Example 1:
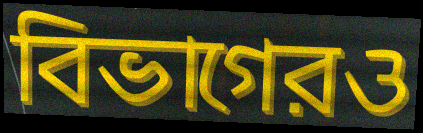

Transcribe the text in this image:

বিভাগেরও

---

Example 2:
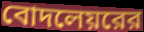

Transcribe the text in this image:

বোদলেয়রের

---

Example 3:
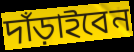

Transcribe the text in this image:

দাঁড়াইবেন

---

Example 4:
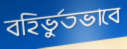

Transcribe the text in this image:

বহির্ভুতভাবে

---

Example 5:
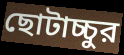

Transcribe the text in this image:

ছোটাচ্চুর